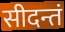
सीदन्तं